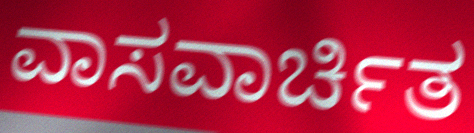
ವಾಸವಾರ್ಚಿತ